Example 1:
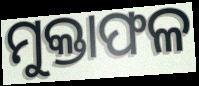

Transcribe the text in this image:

ମୁକ୍ତାଫଳ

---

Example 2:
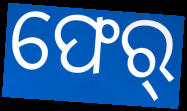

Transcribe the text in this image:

ଫେର୍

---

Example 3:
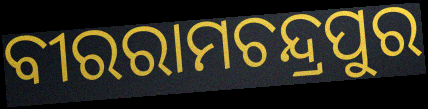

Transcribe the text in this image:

ବୀରରାମଚନ୍ଦ୍ରପୁର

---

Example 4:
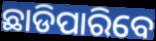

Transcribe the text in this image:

ଛାଡିପାରିବେ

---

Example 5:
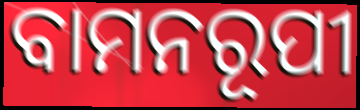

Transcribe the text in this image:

ବାମନରୂପୀ